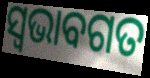
ସ୍ୱଭାବଗତ